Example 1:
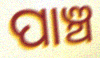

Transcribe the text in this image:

ପାଞ୍ଚ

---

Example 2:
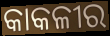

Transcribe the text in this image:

କାକଳୀର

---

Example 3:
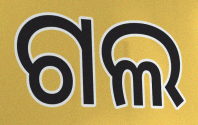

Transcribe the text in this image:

ଗଲ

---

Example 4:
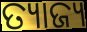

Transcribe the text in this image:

ତ୍ୟାଜ୍ୟ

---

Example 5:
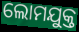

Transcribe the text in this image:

ଲୋମଯୁକ୍ତ